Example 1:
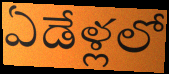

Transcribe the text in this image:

ఏడేళ్లలో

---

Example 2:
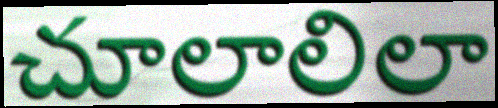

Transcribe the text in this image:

చూలాలిలా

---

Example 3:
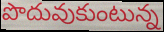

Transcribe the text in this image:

పొదువుకుంటున్న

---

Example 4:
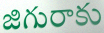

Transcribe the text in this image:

జిగురాకు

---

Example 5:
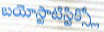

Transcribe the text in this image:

బయోస్టాటిస్టిక్స్లో